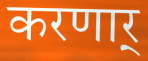
करणार्